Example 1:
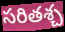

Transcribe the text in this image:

సరితశ్చ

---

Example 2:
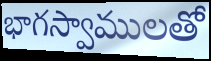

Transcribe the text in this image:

భాగస్వాములతో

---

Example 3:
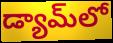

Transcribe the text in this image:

డ్యామ్‌లో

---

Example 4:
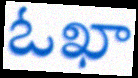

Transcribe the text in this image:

ఓఖా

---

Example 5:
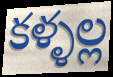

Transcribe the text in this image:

కళ్ళల్ల